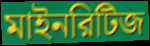
মাইনরিটিজ